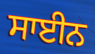
ਸਾਈਨ